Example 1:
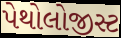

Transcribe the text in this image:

પેથોલોજીસ્ટ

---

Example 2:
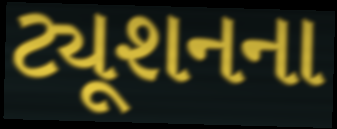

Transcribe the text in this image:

ટ્યૂશનના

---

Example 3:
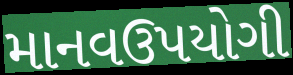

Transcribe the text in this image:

માનવઉપયોગી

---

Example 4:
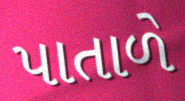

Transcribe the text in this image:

પાતાળે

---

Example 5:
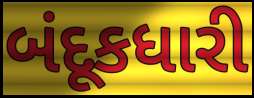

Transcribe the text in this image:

બંદૂકધારી